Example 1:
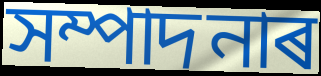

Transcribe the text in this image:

সম্পাদনাৰ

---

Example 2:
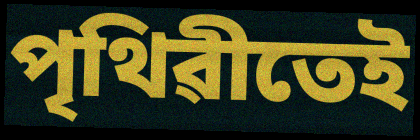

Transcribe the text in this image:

পৃথিৱীতেই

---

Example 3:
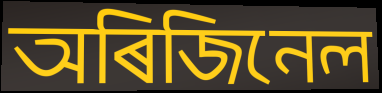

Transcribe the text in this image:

অৰিজিনেল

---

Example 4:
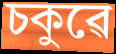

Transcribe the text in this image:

চকুৱে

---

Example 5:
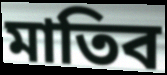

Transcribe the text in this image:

মাতিব